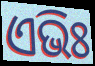
ଏଭିଃ